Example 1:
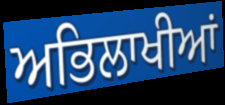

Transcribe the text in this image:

ਅਭਿਲਾਖੀਆਂ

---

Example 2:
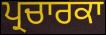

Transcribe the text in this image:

ਪ੍ਰਚਾਰਕਾ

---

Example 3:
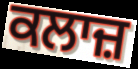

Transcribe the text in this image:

ਕਲਾਜ਼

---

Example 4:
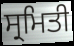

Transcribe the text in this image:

ਸ੍ਰਮਿਤੀ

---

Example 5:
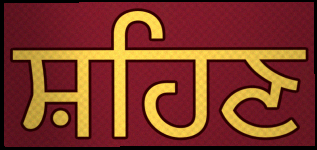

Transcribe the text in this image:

ਸ਼ਹਿਣ